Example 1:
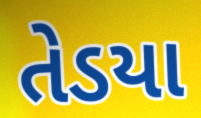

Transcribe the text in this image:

તેડયા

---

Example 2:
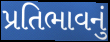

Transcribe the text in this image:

પ્રતિભાવનું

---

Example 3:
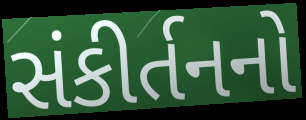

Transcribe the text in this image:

સંકીર્તનનો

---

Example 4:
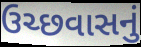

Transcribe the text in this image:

ઉચ્છવાસનું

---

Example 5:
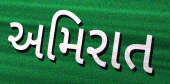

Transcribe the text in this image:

અમિરાત